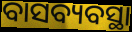
ବାସବ୍ୟବସ୍ଥା